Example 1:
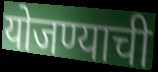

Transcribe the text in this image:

योजण्याची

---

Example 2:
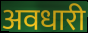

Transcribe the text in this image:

अवधारी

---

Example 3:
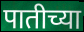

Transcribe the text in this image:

पातीच्या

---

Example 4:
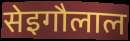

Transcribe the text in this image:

सेइगौलाल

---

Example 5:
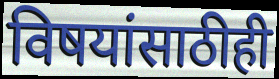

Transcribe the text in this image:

विषयांसाठीही